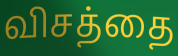
விசத்தை